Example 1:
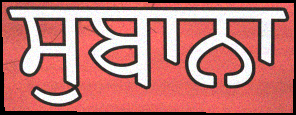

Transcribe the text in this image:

ਸੁਬਾਨਾ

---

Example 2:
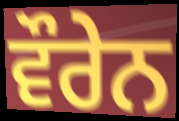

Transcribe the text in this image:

ਵੌਰੇਨ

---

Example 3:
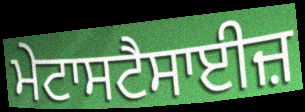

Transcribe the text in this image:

ਮੇਟਾਸਟੈਸਾਈਜ਼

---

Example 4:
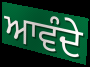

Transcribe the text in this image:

ਆਵੰਦੇ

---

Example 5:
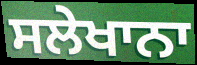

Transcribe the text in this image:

ਸਲੇਖਾਨਾ